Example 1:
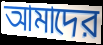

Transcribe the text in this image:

আমাদের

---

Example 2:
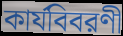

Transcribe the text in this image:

কার্যবিবরণী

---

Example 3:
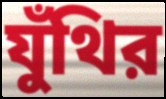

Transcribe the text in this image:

যুঁথির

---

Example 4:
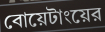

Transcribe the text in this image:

বোয়েটাংয়ের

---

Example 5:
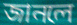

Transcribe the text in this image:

জানলে